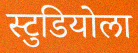
स्टुडियोला